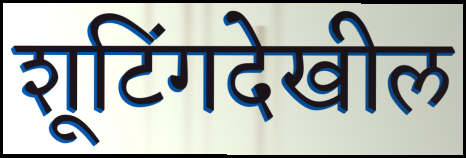
शूटिंगदेखील